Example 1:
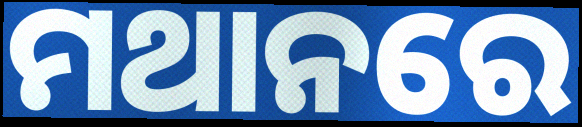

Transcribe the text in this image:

ମଥାନରେ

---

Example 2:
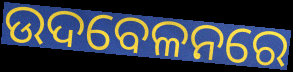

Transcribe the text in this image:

ଉଦବେଳନରେ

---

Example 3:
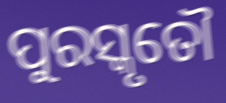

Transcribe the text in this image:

ପୁରସ୍କୃତୌ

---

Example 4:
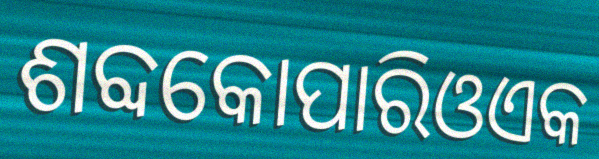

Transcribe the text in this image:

ଶବ୍ଦକୋପାରିଓଏକ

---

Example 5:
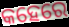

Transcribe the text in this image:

କହେରେ